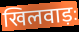
खिलवाड़ः